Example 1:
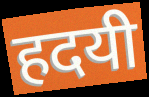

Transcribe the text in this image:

हदयी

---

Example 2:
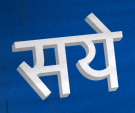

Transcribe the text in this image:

सये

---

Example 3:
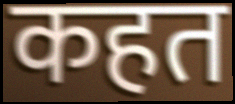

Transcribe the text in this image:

कहत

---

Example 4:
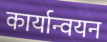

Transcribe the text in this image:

कार्यान्वयन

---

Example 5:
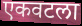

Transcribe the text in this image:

एकवटला